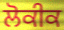
ਲੋਕੀਕ